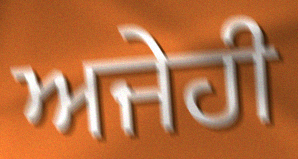
ਅਜੇਹੀ